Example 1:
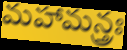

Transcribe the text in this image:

మహామన్త్రః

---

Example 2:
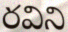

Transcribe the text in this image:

రవిని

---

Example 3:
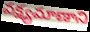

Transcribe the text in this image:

వక్ష్యమాణాని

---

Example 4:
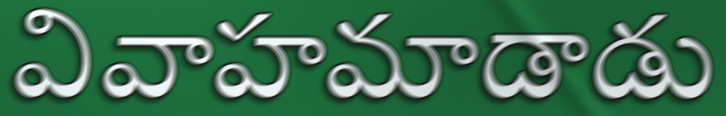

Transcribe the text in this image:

వివాహమాడాడు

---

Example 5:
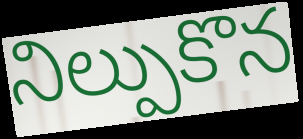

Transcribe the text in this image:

నిల్పుకొన